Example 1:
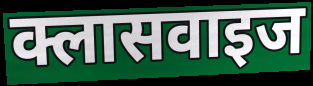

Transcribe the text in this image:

क्लासवाइज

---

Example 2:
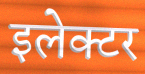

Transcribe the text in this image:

इलेक्टर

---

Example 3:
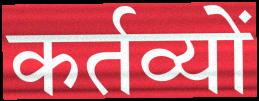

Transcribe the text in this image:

कर्तव्यों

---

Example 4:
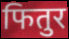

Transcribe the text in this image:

फितुर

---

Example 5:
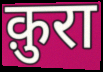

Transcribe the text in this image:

क़ुरा